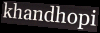
khandhopi